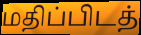
மதிப்பிடத்